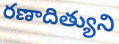
రణాదిత్యుని